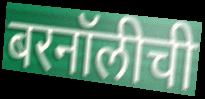
बरनॉलीची